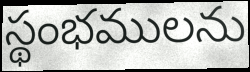
స్థంభములను